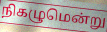
நிகழுமென்று